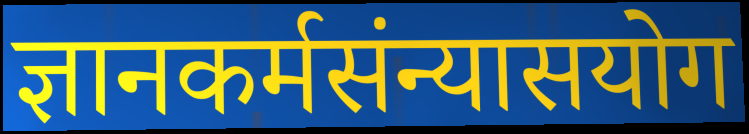
ज्ञानकर्मसंन्यासयोग